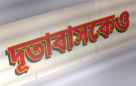
দূতাবাসকেও